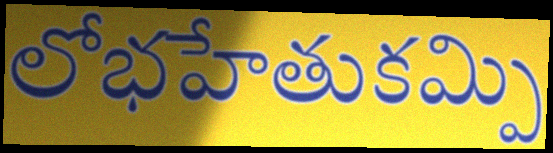
లోభహేతుకమ్పి